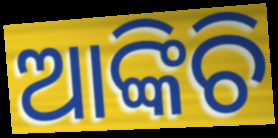
ଆଙ୍କିଚି